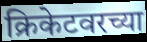
क्रिकेटवरच्या